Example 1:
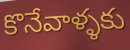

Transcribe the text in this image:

కొనేవాళ్ళకు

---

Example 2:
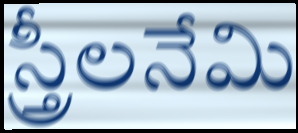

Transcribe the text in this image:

స్త్రీలనేమి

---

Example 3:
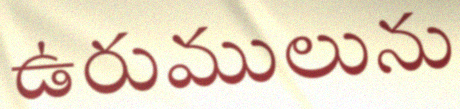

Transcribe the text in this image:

ఉరుములును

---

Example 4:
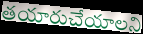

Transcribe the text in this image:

తయారుచేయాలని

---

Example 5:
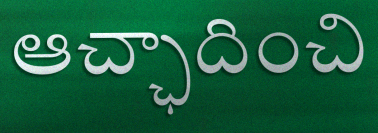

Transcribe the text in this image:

ఆచ్ఛాదించి